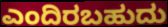
ಎಂದಿರಬಹುದು